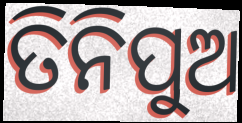
ତିନିପୁଅ